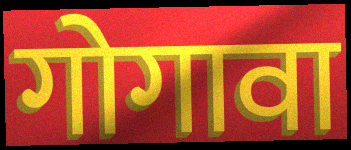
गोगावा